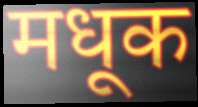
मधूक